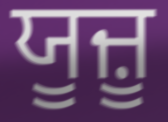
ਯੂਜ਼ੂ